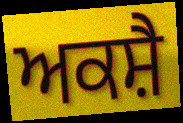
ਅਕਸ਼ੈ